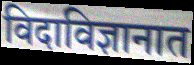
विदाविज्ञानात